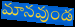
మానవుండ